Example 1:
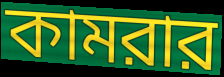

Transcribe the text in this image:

কামরার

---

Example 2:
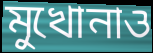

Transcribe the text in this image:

মুখোনাও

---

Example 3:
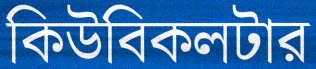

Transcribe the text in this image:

কিউবিকলটার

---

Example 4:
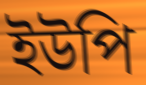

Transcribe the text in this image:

ইউপি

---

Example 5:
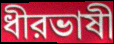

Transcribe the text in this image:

ধীরভাষী